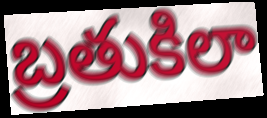
బ్రతుకిలా